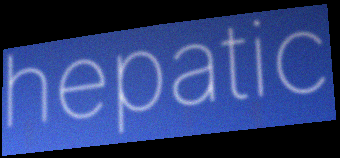
hepatic